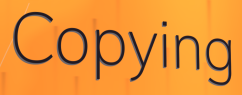
Copying